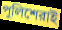
পুলিশেরাই